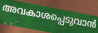
അവകാശപ്പെടുവാൻ